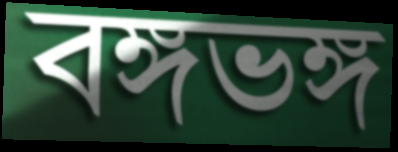
বঙ্গভঙ্গ